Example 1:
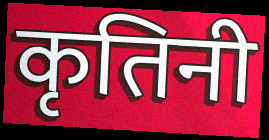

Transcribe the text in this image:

कृतिनी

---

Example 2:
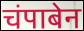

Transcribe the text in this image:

चंपाबेन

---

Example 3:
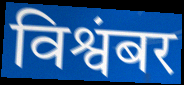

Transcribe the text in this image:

विश्वंबर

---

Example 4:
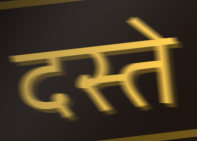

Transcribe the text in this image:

दस्ते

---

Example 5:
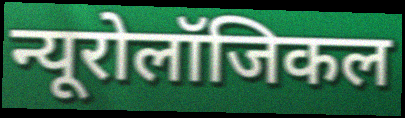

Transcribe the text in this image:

न्यूरोलॉजिकल